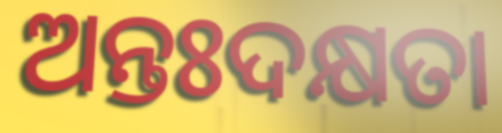
ଅନ୍ତଃଦକ୍ଷତା